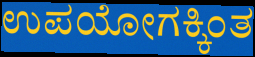
ಉಪಯೋಗಕ್ಕಿಂತ